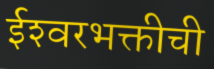
ईश्वरभक्तीची